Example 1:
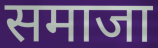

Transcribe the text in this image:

समाजा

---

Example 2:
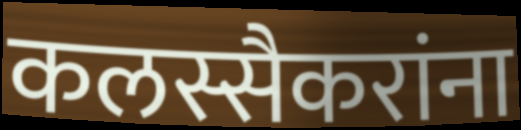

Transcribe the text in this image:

कलस्सैकरांना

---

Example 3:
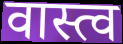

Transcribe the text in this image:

वास्त्व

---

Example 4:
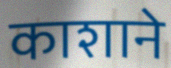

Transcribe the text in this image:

काशाने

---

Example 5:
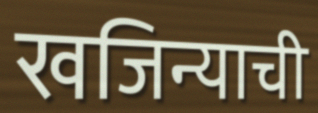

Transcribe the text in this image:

खजिन्याची